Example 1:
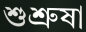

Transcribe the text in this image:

শুশ্রুষা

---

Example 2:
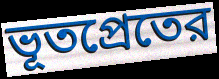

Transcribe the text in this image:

ভূতপ্রেতের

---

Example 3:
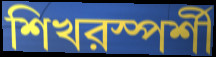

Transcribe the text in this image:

শিখরস্পর্শী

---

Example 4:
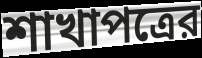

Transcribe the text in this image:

শাখাপত্রের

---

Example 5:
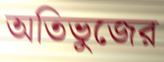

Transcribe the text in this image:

অতিভুজের